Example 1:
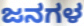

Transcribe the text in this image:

ಜನಗಳ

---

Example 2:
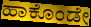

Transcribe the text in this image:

ಹಾಕೊಂಡೇ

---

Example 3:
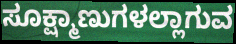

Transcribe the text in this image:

ಸೂಕ್ಷ್ಮಾಣುಗಳಲ್ಲಾಗುವ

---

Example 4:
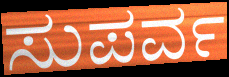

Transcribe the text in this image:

ಸುಪರ್ವ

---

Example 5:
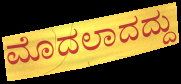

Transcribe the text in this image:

ಮೊದಲಾದದ್ದು